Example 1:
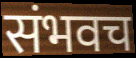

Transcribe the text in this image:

संभवच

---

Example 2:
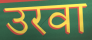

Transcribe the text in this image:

उरवा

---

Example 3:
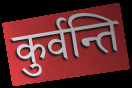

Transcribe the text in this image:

कुर्वन्ति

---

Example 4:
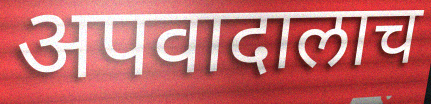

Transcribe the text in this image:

अपवादालाच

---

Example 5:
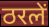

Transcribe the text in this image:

ठरलें